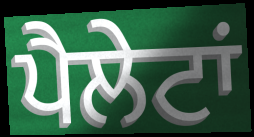
ਪੈਲੇਟਾਂ